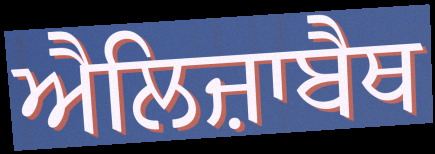
ਐਲਿਜ਼ਾਬੈਥ